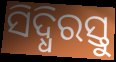
ସିଦ୍ଧିରସ୍ତୁ